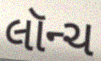
લૉન્ચ